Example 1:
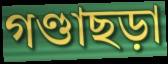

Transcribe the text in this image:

গণ্ডাছড়া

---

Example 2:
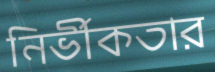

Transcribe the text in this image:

নির্ভীকতার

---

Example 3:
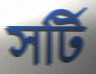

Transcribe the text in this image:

সর্টি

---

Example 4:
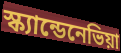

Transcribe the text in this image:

স্ক্যান্ডেনেভিয়া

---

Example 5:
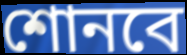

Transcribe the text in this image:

শোনবে